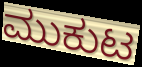
ಮುಕುಟ